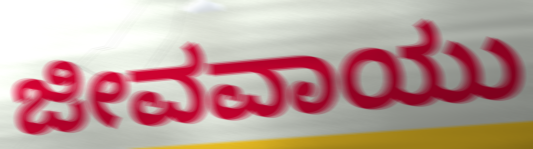
ಜೀವವಾಯು